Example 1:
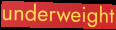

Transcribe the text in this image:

underweight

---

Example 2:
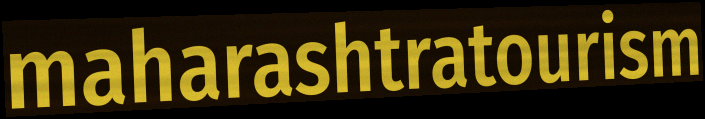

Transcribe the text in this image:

maharashtratourism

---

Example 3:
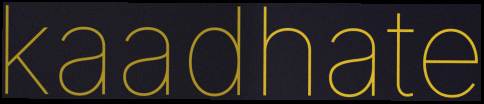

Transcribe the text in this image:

kaadhate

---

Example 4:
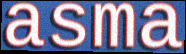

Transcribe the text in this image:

asma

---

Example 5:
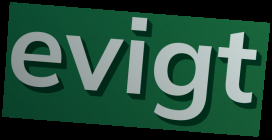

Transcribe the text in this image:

evigt